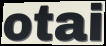
otai